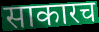
साकारच